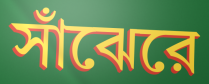
সাঁঝেরে